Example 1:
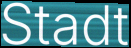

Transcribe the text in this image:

Stadt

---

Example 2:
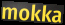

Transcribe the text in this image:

mokka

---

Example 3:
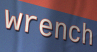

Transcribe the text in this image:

wrench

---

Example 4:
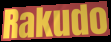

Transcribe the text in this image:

Rakudo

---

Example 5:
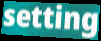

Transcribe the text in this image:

setting